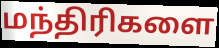
மந்திரிகளை